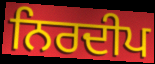
ਨਿਰਦੀਪ